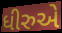
ધીરુએ